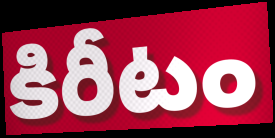
కిరీటం